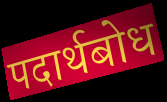
पदार्थबोध